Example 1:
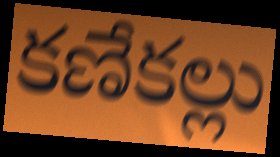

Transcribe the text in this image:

కణేకల్లు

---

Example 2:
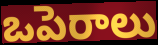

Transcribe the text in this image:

ఒపెరాలు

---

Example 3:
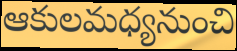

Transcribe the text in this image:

ఆకులమధ్యనుంచి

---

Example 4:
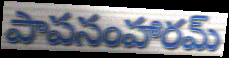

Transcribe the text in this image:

పాపసంహారమ్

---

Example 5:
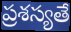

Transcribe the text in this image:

ప్రశస్యతే